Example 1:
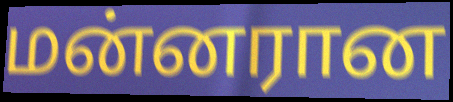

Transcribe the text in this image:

மன்னரான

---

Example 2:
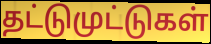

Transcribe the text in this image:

தட்டுமுட்டுகள்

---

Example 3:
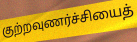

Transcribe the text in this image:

குற்றவுணர்ச்சியைத்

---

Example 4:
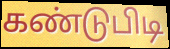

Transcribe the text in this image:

கண்டுபிடி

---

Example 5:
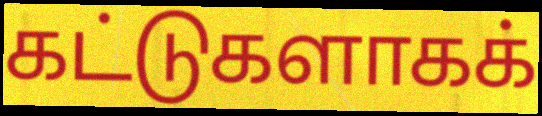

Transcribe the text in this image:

கட்டுகளாகக்